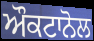
ਔਕਟਾਨੋਲ